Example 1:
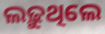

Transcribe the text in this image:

ଲଢ଼ୁଥିଲେ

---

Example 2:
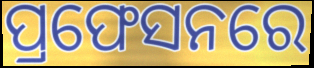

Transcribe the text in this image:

ପ୍ରଫେସନରେ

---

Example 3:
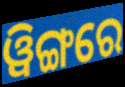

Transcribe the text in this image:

ୱିଙ୍ଗରେ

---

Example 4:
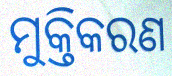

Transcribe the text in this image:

ମୁକ୍ତିକରଣ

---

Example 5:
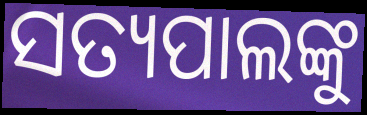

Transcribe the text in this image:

ସତ୍ୟପାଲଙ୍କୁ